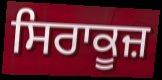
ਸਿਰਾਕੂਜ਼